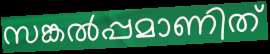
സങ്കൽപ്പമാണിത്